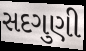
સદગુણી